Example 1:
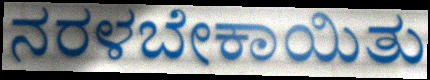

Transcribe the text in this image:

ನರಳಬೇಕಾಯಿತು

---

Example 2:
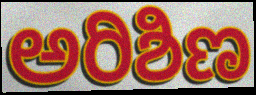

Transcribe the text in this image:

ಅರಿಶಿಣ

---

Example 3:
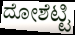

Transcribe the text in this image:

ದೋಶೆಟ್ಟಿ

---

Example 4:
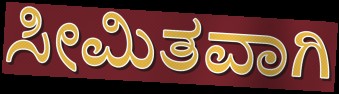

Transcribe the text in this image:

ಸೀಮಿತವಾಗಿ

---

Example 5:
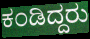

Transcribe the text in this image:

ಕಂಡಿದ್ದರು